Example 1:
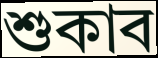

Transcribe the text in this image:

শুকাব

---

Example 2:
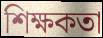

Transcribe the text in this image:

শিক্ষকতা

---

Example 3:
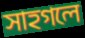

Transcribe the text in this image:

সাহগলে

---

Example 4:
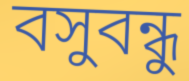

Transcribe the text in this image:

বসুবন্ধু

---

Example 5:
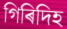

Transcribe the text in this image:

গিৰিদিহ